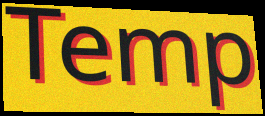
Temp